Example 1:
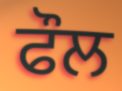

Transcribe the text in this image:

ਫੌਲ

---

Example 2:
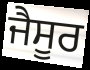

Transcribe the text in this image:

ਜੈਸੂਰ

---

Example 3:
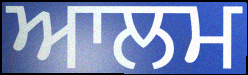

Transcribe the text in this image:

ਆਲਮ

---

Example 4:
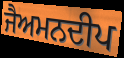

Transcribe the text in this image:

ਜੈਅਮਨਦੀਪ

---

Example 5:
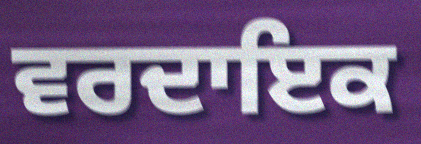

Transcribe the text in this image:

ਵਰਦਾਇਕ